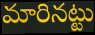
మారినట్టు